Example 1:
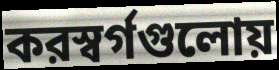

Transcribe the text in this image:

করস্বর্গগুলোয়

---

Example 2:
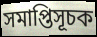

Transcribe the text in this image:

সমাপ্তিসূচক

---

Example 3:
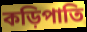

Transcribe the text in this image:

কড়িপাতি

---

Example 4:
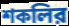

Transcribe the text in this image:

শকলির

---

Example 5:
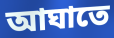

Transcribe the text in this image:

আঘাতে